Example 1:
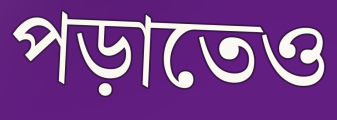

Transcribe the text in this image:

পড়াতেও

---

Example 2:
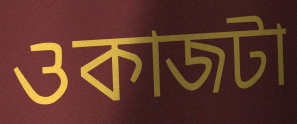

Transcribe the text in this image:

ওকাজটা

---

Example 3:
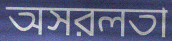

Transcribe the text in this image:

অসরলতা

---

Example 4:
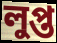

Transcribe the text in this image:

লুপ্ত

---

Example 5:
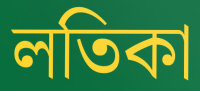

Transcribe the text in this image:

লতিকা